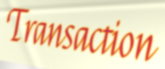
Transaction